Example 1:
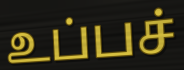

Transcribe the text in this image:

உப்பச்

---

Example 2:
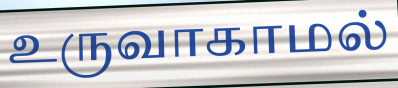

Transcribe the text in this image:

உருவாகாமல்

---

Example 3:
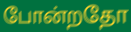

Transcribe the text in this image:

போன்றதோ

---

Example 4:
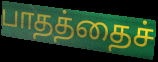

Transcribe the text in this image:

பாதத்தைச்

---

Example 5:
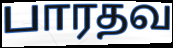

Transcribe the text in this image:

பாரதவ